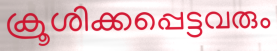
ക്രൂശിക്കപ്പെട്ടവരും